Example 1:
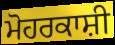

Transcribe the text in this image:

ਮੋਹਰਕਾਸ਼ੀ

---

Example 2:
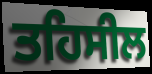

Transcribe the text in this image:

ਤਹਿਸੀਲ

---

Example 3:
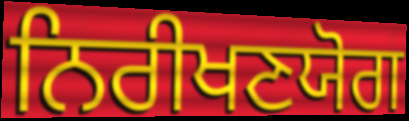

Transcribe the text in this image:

ਨਿਰੀਖਣਯੋਗ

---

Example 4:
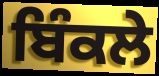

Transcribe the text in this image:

ਬਿੰਕਲੇ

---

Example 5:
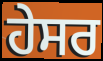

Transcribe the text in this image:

ਹੇਸਰ